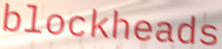
blockheads